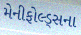
મેનીફોલ્ડ્સના